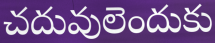
చదువులెందుకు